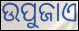
ଉପୁଜାଏ